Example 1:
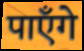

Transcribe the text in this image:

पाएँगे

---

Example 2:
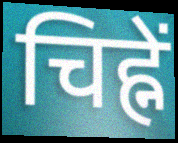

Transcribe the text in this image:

चिह्नें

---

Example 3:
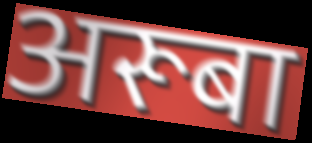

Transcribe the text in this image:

अरूबा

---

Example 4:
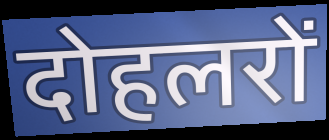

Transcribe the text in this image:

दोहलरों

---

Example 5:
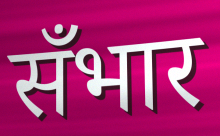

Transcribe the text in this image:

सँभार